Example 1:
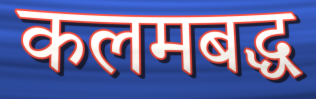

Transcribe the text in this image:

कलमबद्ध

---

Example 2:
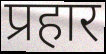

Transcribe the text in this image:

प्रहार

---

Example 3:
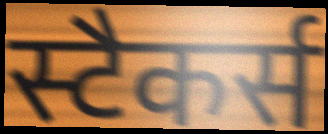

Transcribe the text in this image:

स्टैकर्स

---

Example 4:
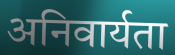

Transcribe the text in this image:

अनिवार्यता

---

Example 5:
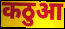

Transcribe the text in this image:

कठुआ